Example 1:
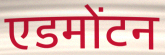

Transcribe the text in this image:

एडमोंटन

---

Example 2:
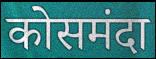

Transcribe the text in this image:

कोसमंदा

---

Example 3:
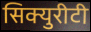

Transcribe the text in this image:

सिक्युरीटी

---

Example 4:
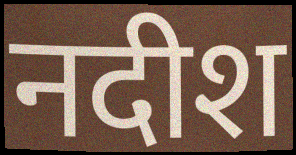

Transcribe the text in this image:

नदीश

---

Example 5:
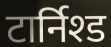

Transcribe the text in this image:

टार्निश्ड